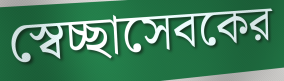
স্বেচ্ছাসেবকের